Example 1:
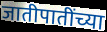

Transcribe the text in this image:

जातीपातींच्या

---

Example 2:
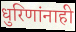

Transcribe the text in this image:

धुरिणांनाही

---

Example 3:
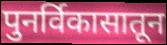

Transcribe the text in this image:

पुनर्विकासातून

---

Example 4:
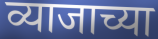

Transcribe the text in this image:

व्याजाच्या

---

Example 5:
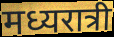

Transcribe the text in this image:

मध्यरात्री